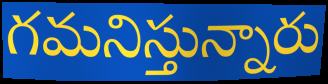
గమనిస్తున్నారు